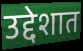
उद्देशात